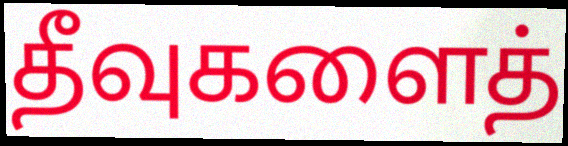
தீவுகளைத்